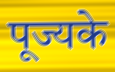
पूज्यके